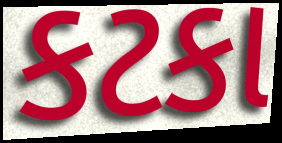
કટકા